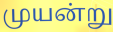
முயன்று